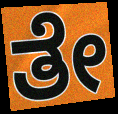
ತೇ